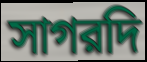
সাগরদি